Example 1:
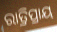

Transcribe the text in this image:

ରାତ୍ରିପ୍ରାୟ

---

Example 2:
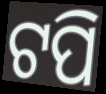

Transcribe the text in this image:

ଟପି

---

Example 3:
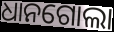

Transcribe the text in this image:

ଧାନଗୋଲା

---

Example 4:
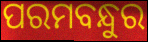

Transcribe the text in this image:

ପରମବନ୍ଧୁର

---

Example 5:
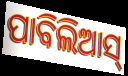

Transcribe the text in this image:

ପାବିଲିଆସ୍